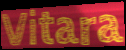
Vitara